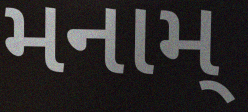
મનામ્